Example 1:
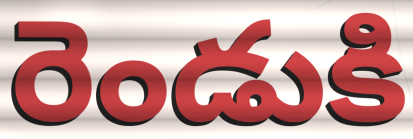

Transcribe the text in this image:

రెండుకి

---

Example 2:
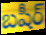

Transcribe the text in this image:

బషీర్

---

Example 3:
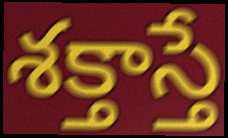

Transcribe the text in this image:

శక్తాస్తే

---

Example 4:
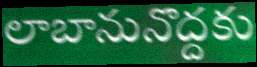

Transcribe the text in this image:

లాబానునొద్దకు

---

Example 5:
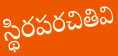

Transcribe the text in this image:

స్థిరపరచితివి